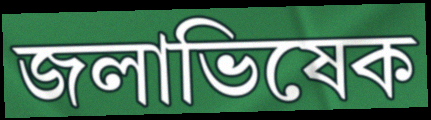
জলাভিষেক